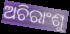
ଅଚିରାଂଶୁ